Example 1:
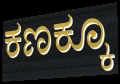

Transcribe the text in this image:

ಕಣಕ್ಕೂ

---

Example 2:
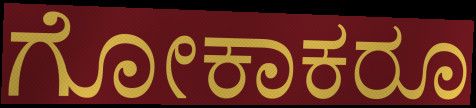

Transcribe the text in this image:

ಗೋಕಾಕರೂ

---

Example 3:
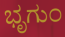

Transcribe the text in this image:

ಭೃಗುಂ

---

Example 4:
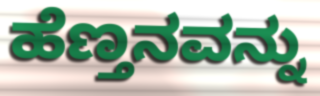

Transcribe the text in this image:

ಹೆಣ್ತನವನ್ನು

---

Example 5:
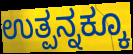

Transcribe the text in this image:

ಉತ್ಪನ್ನಕ್ಕೂ